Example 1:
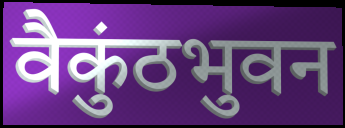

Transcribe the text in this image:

वैकुंठभुवन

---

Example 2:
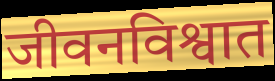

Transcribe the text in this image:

जीवनविश्वात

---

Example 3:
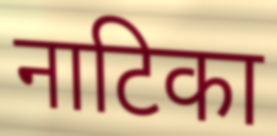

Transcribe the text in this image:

नाटिका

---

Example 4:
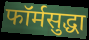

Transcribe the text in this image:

फॉर्मसुद्धा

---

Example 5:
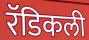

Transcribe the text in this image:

रॅडिकली